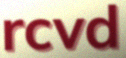
rcvd